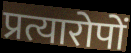
प्रत्यारोपों